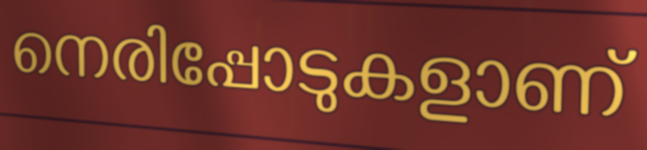
നെരിപ്പോടുകളാണ്